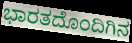
ಭಾರತದೊಂದಿಗಿನ